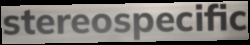
stereospecific